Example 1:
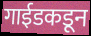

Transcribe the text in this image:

गाईडकडून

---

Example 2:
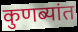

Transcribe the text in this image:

कुणब्यांत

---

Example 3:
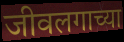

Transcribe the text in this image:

जीवलगाच्या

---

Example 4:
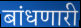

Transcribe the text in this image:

बांधणारी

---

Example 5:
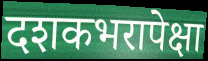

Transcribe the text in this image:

दशकभरापेक्षा